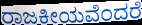
ರಾಜಕೀಯವೆಂದರೆ